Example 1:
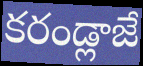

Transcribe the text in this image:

కరండ్లాజే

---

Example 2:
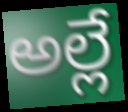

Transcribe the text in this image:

అల్లే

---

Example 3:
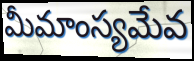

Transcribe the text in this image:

మీమాంస్యమేవ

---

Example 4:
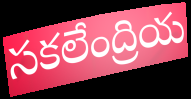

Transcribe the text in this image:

సకలేంద్రియ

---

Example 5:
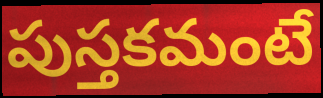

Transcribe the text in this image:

పుస్తకమంటే